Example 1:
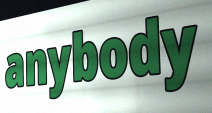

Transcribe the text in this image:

anybody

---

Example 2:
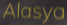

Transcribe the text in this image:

Alasya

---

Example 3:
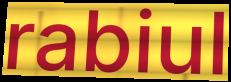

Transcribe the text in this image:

rabiul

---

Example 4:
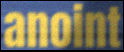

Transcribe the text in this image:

anoint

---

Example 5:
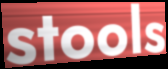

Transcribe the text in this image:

stools